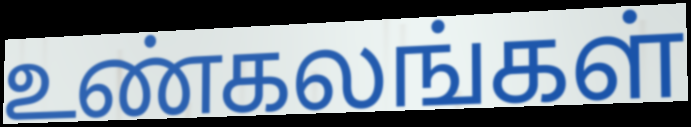
உண்கலங்கள்